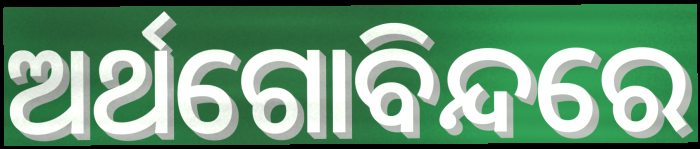
ଅର୍ଥଗୋବିନ୍ଦରେ